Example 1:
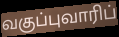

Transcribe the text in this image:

வகுப்புவாரிப்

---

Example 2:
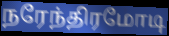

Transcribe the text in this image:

நரேந்திரமோடி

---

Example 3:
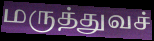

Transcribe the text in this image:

மருத்துவச்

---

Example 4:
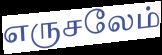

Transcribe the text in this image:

எருசலேம்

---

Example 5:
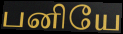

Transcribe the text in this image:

பனியே